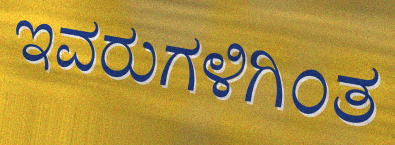
ಇವರುಗಳಿಗಿಂತ